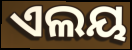
ଏଲୟ